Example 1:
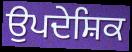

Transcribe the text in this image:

ਉਪਦੇਸ਼ਿਕ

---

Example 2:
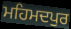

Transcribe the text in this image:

ਮਹਿਮਦਪੁਰ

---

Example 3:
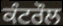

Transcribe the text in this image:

ਕੰਟਰੌਲ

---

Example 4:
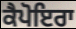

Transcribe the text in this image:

ਕੈਪੋਇਰਾ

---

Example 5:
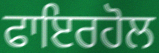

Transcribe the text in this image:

ਫਾਇਰਹੋਲ